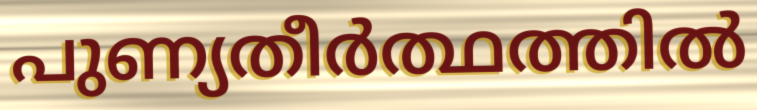
പുണ്യതീർത്ഥത്തിൽ